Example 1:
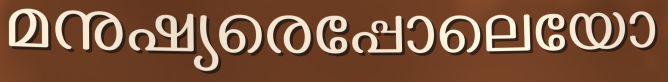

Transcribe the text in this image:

മനുഷ്യരെപ്പോലെയോ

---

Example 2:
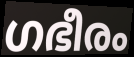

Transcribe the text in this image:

ഗഭീരം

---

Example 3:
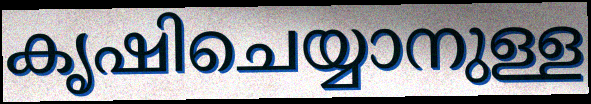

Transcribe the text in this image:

കൃഷിചെയ്യാനുള്ള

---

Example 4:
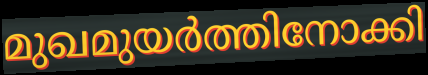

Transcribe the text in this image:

മുഖമുയർത്തിനോക്കി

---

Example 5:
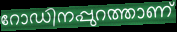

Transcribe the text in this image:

റോഡിനപ്പുറത്താണ്